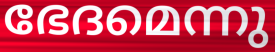
ഭേദമെന്നു